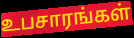
உபசாரங்கள்